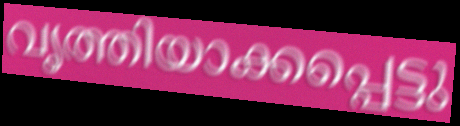
വൃത്തിയാക്കപ്പെട്ടു